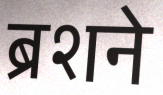
ब्रशने